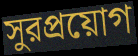
সুরপ্রয়োগ